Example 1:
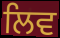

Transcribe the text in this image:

ਲਿਵ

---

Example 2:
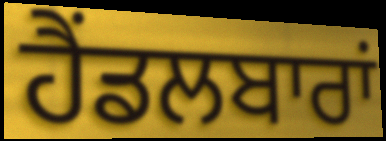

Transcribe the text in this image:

ਹੈਂਡਲਬਾਰਾਂ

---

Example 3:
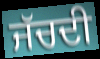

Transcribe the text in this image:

ਜੱਚਦੀ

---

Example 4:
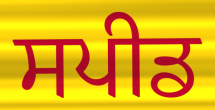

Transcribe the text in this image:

ਸਪੀਡ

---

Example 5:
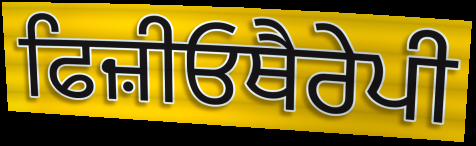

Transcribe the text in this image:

ਫਿਜ਼ੀਓਥੈਰੇਪੀ